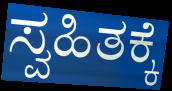
ಸ್ವಹಿತಕ್ಕೆ